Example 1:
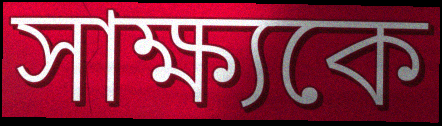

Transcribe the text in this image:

সাক্ষ্যকে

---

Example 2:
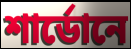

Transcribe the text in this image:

শার্ডোনে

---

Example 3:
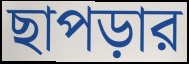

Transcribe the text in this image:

ছাপড়ার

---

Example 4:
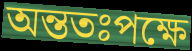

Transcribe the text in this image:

অন্ততঃপক্ষে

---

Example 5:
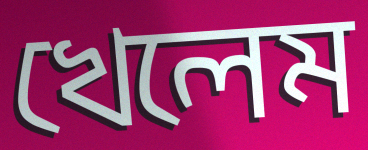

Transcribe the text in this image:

খেলেম